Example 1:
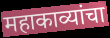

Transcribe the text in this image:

महाकाव्यांचा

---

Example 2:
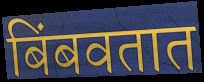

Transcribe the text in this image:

बिंबवतात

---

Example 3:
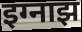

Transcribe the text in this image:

इग्नाझ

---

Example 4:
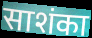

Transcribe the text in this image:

साशंका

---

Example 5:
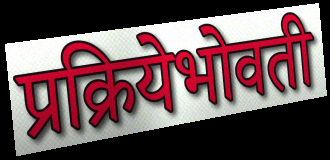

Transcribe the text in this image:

प्रक्रियेभोवती